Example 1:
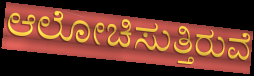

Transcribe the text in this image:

ಆಲೋಚಿಸುತ್ತಿರುವೆ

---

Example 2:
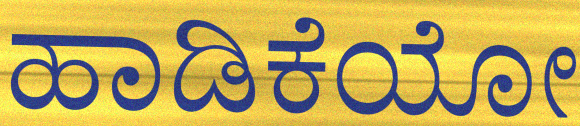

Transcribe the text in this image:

ಹಾಡಿಕೆಯೋ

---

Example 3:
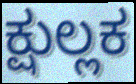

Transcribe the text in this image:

ಕ್ಷುಲ್ಲಕ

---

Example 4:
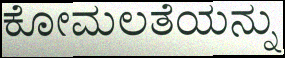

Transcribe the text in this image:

ಕೋಮಲತೆಯನ್ನು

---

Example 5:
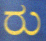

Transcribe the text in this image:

ರು